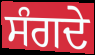
ਸੰਗਦੇ